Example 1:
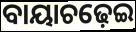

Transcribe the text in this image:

ବାୟାଚଢ଼େଇ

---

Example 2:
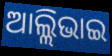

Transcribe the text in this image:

ଆଲ୍ଲିଭାଇ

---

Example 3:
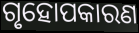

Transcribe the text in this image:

ଗୃହୋପକାରଣ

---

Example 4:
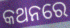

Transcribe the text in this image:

କଥନରେ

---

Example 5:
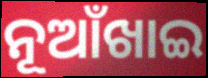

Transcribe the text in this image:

ନୂଆଁଖାଇ